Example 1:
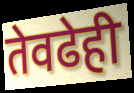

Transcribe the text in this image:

तेवढेही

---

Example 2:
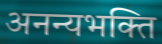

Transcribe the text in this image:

अनन्यभक्ति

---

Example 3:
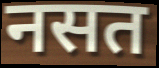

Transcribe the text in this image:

नसत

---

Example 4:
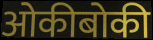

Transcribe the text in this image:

ओकीबोकी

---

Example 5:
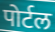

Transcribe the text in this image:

पोर्टल